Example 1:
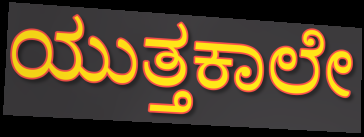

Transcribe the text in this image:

ಯುತ್ತಕಾಲೇ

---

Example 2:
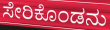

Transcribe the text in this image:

ಸೇರಿಕೊಂಡನು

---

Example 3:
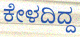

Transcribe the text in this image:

ಕೇಳದಿದ್ದ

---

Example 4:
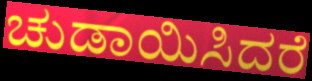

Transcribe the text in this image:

ಚುಡಾಯಿಸಿದರೆ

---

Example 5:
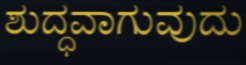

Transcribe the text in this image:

ಶುದ್ಧವಾಗುವುದು